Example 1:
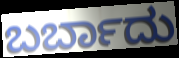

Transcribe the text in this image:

ಬರ್ಬಾದು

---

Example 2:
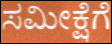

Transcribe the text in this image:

ಸಮೀಕ್ಷೆಗೆ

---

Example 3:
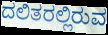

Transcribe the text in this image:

ದಲಿತರಲ್ಲಿರುವ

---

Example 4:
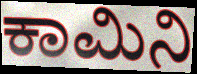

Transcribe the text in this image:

ಕಾಮಿನಿ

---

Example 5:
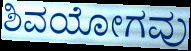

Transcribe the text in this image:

ಶಿವಯೋಗವು